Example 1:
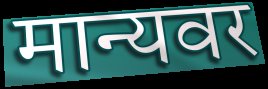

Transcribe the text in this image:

मान्यवर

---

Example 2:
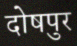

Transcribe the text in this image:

दोषपुर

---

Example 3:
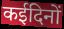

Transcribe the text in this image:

कईदिनों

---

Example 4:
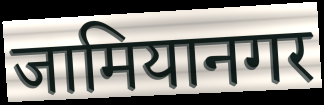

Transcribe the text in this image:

जामियानगर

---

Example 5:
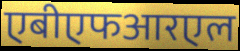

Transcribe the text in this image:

एबीएफआरएल